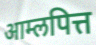
आम्लपित्त